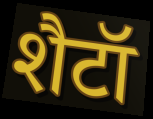
शैटॉ